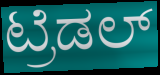
ಟ್ರೆಡಲ್